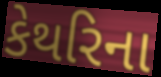
કેથરિના